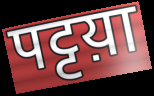
पट्टय़ा